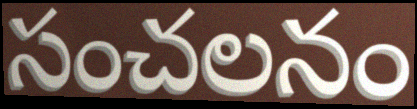
సంచలనం